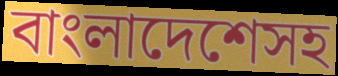
বাংলাদেশেসহ